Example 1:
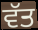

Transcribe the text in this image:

ਵੱਤ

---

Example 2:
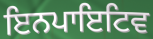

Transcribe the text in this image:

ਇਨਪਾਇਟਿਵ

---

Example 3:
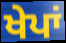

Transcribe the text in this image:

ਖੇਪਾਂ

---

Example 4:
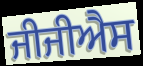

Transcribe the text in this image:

ਜੀਜੀਐਸ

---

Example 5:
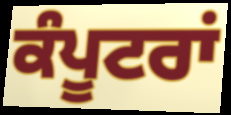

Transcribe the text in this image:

ਕੰਪੂਟਰਾਂ